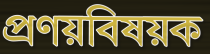
প্রণয়বিষয়ক